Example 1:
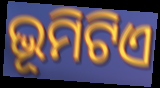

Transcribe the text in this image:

ଭୂମିଟିଏ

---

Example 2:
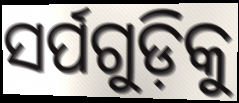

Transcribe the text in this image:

ସର୍ପଗୁଡ଼ିକୁ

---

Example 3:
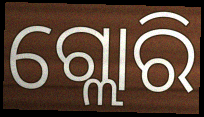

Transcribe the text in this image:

ଗ୍ଲୋରି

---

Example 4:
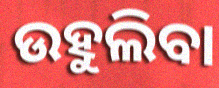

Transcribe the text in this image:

ଉହୁଲିବା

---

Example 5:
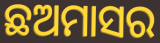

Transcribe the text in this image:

ଛଅମାସର